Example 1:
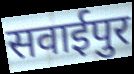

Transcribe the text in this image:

सवाईपुर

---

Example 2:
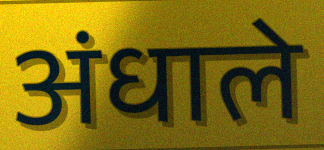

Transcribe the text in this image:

अंधाले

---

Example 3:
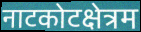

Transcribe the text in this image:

नाटकोटक्षेत्रम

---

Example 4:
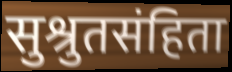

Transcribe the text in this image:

सुश्रुतसंहिता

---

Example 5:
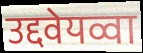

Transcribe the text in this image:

उद्दवेयव्वा